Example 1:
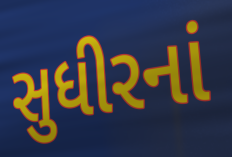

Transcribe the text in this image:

સુધીરનાં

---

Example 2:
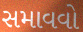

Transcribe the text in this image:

સમાવવો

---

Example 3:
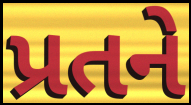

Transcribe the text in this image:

પ્રતને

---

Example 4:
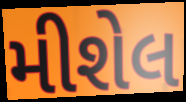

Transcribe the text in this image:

મીશેલ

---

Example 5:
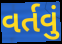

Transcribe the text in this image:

વર્તવું